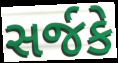
સર્જકે